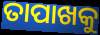
ତାପାଖକୁ